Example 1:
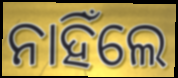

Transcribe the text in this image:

ନାହିଁଲେ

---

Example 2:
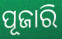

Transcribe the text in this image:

ପୂଜାରି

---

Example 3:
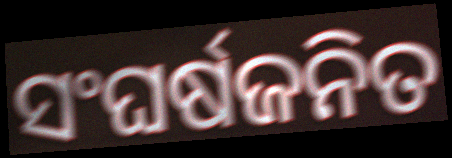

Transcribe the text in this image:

ସଂଘର୍ଷଜନିତ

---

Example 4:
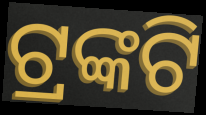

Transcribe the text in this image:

ଟ୍ରଙ୍କଟି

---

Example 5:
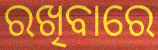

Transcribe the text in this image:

ରଖିବାରେ